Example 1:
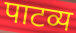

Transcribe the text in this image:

पाटव्य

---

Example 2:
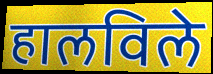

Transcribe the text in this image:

हालविले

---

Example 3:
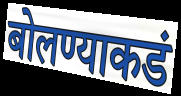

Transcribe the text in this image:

बोलण्याकडं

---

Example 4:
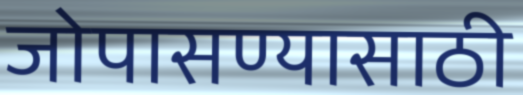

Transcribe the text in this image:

जोपासण्यासाठी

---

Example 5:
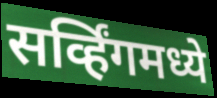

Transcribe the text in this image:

सर्व्हिंगमध्ये